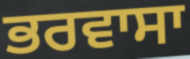
ਭਰਵਾਸਾ